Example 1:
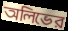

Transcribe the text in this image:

অলিভের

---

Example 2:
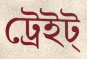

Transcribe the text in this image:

ট্রেইট্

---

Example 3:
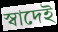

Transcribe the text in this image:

স্বাদেই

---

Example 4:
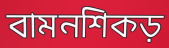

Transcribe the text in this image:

বামনশিকড়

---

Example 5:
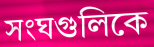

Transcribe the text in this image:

সংঘগুলিকে